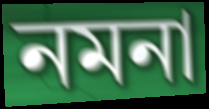
নমনা